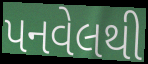
પનવેલથી